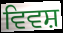
ਵਿਵਸ਼